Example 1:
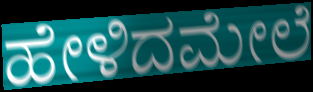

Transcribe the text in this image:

ಹೇಳಿದಮೇಲೆ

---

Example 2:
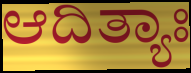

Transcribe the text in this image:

ಆದಿತ್ಯಾಃ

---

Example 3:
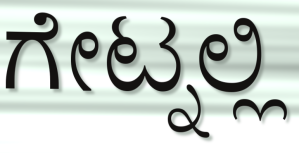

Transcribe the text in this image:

ಗೇಟ್ನಲ್ಲಿ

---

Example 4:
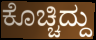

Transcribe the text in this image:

ಕೊಚ್ಚಿದ್ದು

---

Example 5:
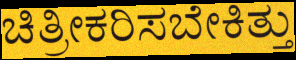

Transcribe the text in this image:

ಚಿತ್ರೀಕರಿಸಬೇಕಿತ್ತು